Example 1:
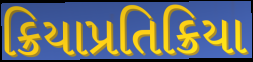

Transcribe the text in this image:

ક્રિયાપ્રતિક્રિયા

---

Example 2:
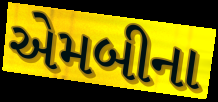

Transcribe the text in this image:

એમબીના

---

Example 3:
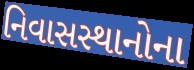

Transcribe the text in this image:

નિવાસસ્થાનોના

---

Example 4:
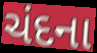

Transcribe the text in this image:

ચંદના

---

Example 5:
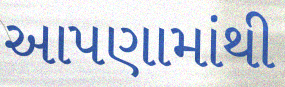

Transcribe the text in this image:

આપણામાંથી